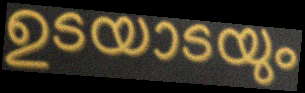
ഉടയാടയും